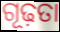
ଗୂଢ଼ତା